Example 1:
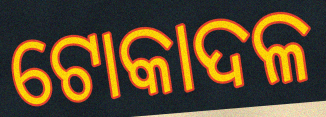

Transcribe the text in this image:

ଟୋକାଦଳ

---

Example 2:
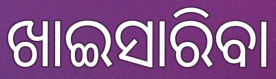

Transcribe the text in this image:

ଖାଇସାରିବା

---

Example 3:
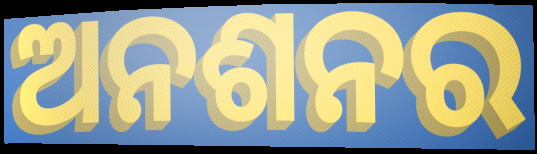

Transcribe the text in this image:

ଅନଶନର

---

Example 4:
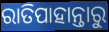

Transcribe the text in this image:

ରାତିପାହାନ୍ତାରୁ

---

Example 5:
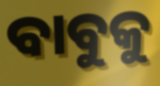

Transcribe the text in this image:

ବାବୁକୁ